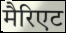
मैरिएट